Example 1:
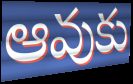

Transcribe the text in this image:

ఆవుకు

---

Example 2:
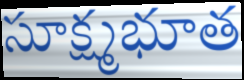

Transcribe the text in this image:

సూక్ష్మభూత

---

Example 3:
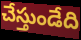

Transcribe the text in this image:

చేస్తుండేది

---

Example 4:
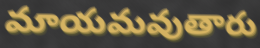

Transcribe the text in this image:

మాయమవుతారు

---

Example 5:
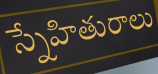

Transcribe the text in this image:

స్నేహితురాలు